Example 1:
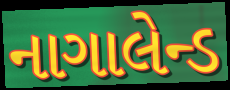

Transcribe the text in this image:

નાગાલેન્ડ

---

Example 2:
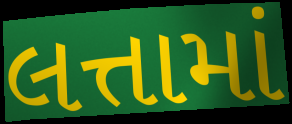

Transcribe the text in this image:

લત્તામાં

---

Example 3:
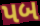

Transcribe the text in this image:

પબ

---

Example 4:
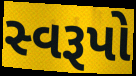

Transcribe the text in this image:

સ્વરૂપો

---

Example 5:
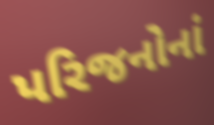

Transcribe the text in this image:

પરિજનોનાં